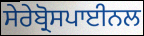
ਸੇਰੇਬ੍ਰੋਸਪਾਈਨਲ